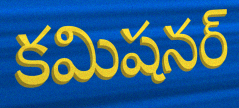
కమిషనర్